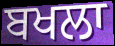
ਬਖਲਾ